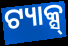
ଟ୍ୟାକ୍ସ୍